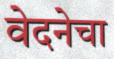
वेदनेचा